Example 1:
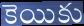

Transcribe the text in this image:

కెయికు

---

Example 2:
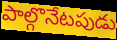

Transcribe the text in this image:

పాల్గొనేటపుడు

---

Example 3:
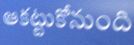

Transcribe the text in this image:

ఆకట్టుకోనుంది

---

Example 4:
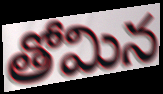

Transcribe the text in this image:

తోమిన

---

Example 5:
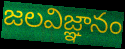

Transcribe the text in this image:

జలవిజ్ఞానం